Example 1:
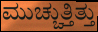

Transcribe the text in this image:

ಮುಚ್ಚುತ್ತಿತ್ತು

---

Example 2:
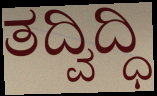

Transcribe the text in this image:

ತದ್ವಿದ್ಧಿ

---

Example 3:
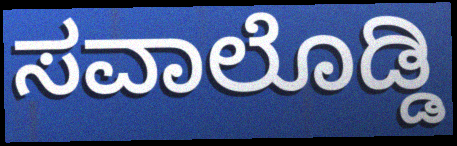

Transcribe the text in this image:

ಸವಾಲೊಡ್ಡಿ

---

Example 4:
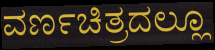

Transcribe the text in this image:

ವರ್ಣಚಿತ್ರದಲ್ಲೂ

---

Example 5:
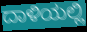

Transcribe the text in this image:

ದಾಳಿಯಲ್ಲಿ